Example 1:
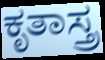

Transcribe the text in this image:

ಕೃತಾಸ್ತ್ರ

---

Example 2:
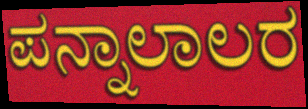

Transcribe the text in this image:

ಪನ್ನಾಲಾಲರ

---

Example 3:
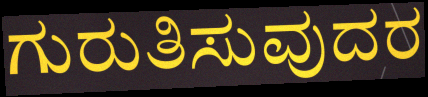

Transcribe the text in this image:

ಗುರುತಿಸುವುದರ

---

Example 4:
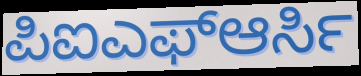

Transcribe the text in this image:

ಪಿಐಎಫ್ಆರ್ಸಿ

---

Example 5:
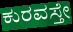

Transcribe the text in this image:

ಕುರವಸ್ತೇ